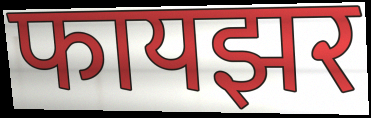
फायझर